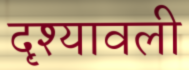
दृश्यावली